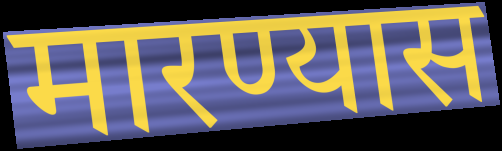
मारण्यास